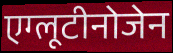
एग्लूटीनोजेन